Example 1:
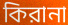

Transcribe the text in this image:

কিরানা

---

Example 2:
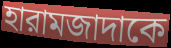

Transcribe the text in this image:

হারামজাদাকে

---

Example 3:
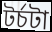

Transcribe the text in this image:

টর্চটা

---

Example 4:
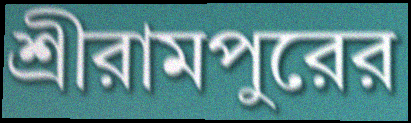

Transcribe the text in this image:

শ্রীরামপুরের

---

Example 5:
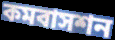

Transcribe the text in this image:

কমবাসশন